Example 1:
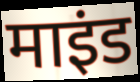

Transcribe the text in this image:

माइंड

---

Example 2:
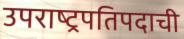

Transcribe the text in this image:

उपराष्ट्रपतिपदाची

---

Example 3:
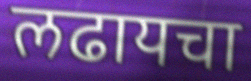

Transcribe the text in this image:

लढायचा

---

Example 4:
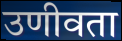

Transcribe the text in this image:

उणीवता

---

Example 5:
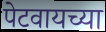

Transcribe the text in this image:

पेटवायच्या